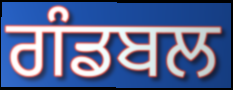
ਗੰਡਬਲ